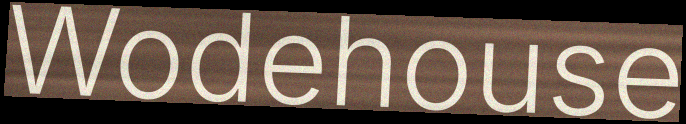
Wodehouse